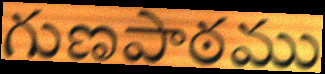
గుణపాఠము